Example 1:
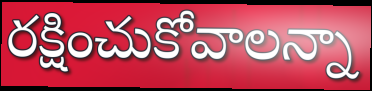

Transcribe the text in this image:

రక్షించుకోవాలన్నా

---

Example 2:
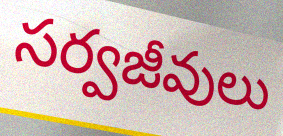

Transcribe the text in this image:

సర్వజీవులు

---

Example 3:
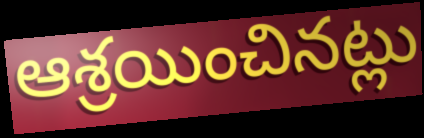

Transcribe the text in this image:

ఆశ్రయించినట్లు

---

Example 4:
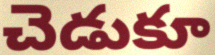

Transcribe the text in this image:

చెడుకూ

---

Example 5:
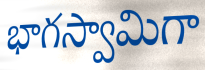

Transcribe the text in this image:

భాగస్వామిగా